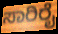
ಸಾರಿರೈ